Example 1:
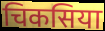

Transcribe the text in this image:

चिकसिया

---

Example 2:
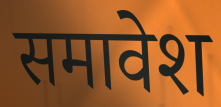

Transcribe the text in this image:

समावेश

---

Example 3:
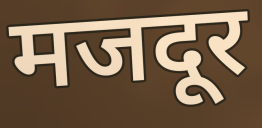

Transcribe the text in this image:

मजदूर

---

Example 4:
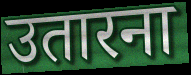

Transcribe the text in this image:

उतारना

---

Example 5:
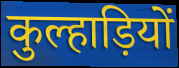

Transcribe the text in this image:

कुल्हाड़ियों